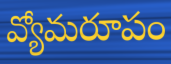
వ్యోమరూపం